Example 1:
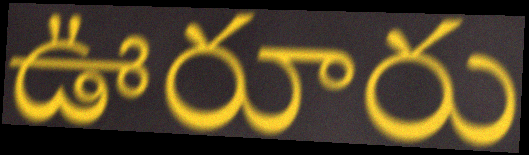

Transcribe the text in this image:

ఊరూరు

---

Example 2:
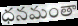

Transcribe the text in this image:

ధనమంతా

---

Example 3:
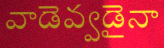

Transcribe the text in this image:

వాడెవ్వడైనా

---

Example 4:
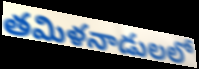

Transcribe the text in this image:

తమిళనాడులలో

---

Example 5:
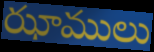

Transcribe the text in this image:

ఝాములు